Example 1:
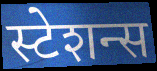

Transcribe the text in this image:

स्टेशन्स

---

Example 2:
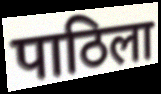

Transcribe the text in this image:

पाठिला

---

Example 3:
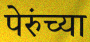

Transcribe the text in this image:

पेरुंच्या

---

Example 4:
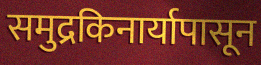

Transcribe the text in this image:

समुद्रकिनार्यापासून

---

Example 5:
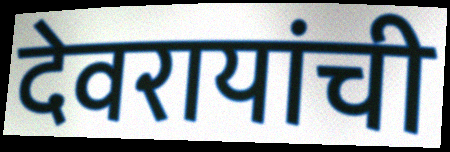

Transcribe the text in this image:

देवरायांची